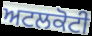
ਅਟਲਕੋਟੀ